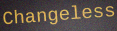
Changeless